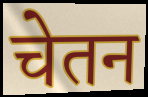
चेतन